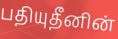
பதியுதீனின்